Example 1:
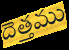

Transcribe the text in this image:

దెత్తము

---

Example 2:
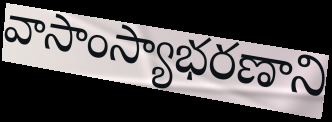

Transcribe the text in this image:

వాసాంస్యాభరణాని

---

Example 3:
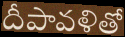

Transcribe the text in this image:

దీపావళితో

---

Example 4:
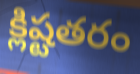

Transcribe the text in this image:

క్లిష్టతరం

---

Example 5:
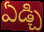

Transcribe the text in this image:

ఏడ్చి